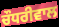
ਚੌਧਰੀਵਾਲ